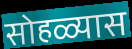
सोहळ्यास